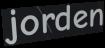
jorden